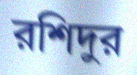
রশিদুর